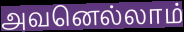
அவனெல்லாம்